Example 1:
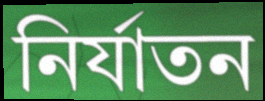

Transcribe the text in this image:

নিৰ্যাতন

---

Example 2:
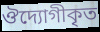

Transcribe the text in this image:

ঔদ্যোগীকৃত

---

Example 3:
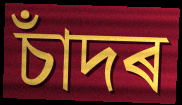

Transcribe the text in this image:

চাঁদৰ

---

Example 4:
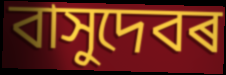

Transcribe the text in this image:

বাসুদেবৰ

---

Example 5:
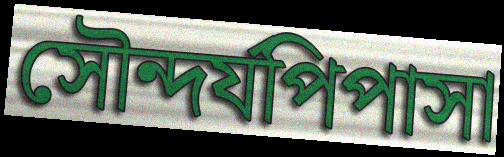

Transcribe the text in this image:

সৌন্দৰ্যপিপাসা